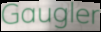
Gaugler